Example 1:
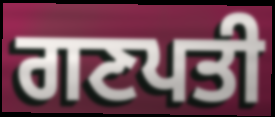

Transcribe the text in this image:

ਗਣਪਤੀ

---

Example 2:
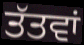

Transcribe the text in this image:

ਤੱਤਵਾਂ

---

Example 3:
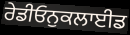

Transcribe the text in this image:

ਰੇਡੀਓਨੁਕਲਾਈਡ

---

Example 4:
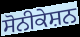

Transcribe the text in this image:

ਸੋਨੀਕੇਸ਼ਨ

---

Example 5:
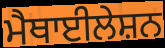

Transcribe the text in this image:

ਮੈਥਾਈਲੇਸ਼ਨ